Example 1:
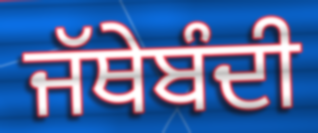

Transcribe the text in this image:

ਜੱਥੇਬੰਦੀ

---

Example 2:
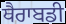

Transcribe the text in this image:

ਥੈਰਾਬਡੀ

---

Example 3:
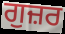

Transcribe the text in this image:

ਗੁਜ਼ਰ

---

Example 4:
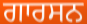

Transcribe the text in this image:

ਗਾਰਸਨ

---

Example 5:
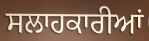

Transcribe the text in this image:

ਸਲਾਹਕਾਰੀਆਂ